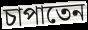
চাপাতেন